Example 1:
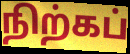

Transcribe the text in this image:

நிற்கப்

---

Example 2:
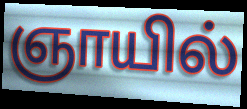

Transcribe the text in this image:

ஞாயில்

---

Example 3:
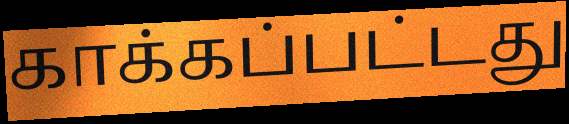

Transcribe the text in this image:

காக்கப்பட்டது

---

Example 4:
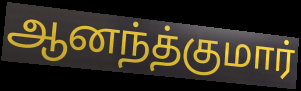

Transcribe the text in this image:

ஆனந்த்குமார்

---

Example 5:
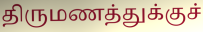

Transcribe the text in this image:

திருமணத்துக்குச்